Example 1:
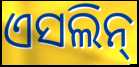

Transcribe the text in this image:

ଏସଲିନ୍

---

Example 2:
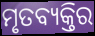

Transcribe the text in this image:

ମୃତବ୍ୟକ୍ତିର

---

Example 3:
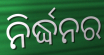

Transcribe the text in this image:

ନିର୍ଦ୍ଧନର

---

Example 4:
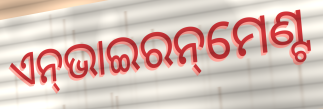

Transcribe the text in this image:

ଏନ୍‌ଭାଇରନ୍‌ମେଣ୍ଟ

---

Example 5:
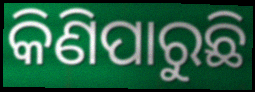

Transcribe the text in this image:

କିଣିପାରୁଛି